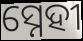
ସ୍ନେହୀ